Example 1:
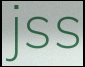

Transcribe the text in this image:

jss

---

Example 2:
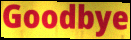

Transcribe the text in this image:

Goodbye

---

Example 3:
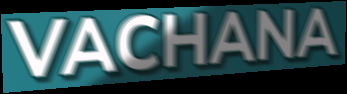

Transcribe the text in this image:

VACHANA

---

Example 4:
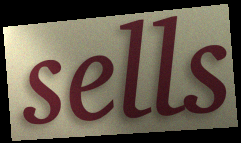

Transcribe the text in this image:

sells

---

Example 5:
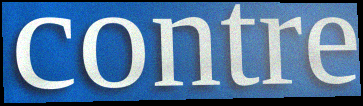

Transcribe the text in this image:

contre